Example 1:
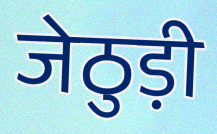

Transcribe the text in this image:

जेठुड़ी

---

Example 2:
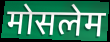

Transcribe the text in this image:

मोसलेम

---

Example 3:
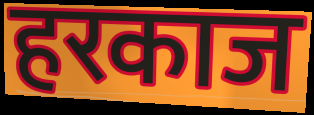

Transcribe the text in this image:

हरकाज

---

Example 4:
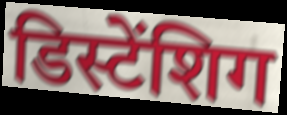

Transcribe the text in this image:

डिस्टेंशिग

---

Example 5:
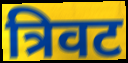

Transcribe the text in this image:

त्रिवट